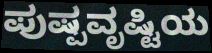
ಪುಷ್ಪವೃಷ್ಟಿಯ